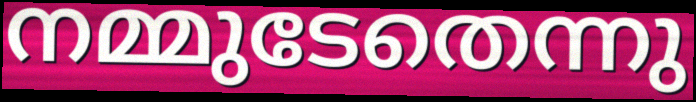
നമ്മുടേതെന്നു